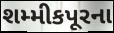
શમ્મીકપૂરના